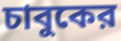
চাবুকের